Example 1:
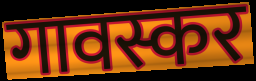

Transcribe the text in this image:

गावस्कर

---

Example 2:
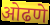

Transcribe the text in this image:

ओढणे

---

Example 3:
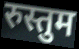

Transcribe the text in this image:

रुस्तुम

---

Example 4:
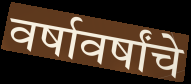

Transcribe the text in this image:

वर्षावर्षांचे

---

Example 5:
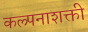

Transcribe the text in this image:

कल्पनाशक्ती